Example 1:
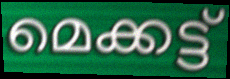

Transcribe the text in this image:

മെക്കട്ട്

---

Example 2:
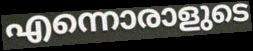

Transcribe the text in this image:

എന്നൊരാളുടെ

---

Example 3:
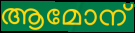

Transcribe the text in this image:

ആമോന്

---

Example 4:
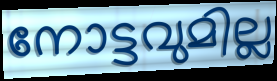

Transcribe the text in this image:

നോട്ടവുമില്ല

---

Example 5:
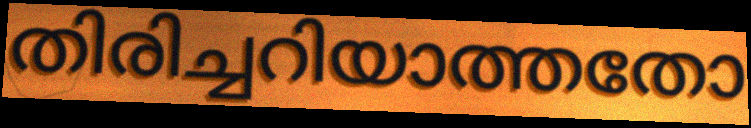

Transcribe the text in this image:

തിരിച്ചറിയാത്തതോ